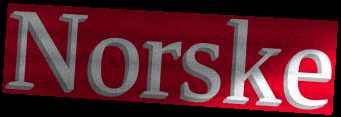
Norske